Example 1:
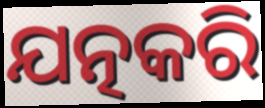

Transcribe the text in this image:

ଯତ୍ନକରି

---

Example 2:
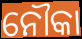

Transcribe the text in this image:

ନୌକା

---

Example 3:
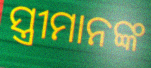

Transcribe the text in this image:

ସ୍ତ୍ରୀମାନଙ୍କ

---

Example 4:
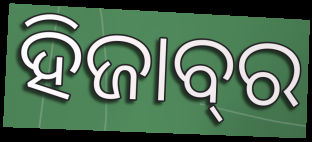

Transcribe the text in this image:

ହିଜାବ୍‌ର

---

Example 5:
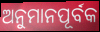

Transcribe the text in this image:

ଅନୁମାନପୂର୍ବକ